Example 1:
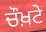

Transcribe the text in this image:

ਚੌਖ਼ਟੇ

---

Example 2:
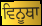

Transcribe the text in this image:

ਵਿਨੂਥਾ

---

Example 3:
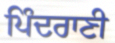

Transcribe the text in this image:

ਪਿੰਦਰਾਣੀ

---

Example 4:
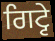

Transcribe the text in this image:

ਗਿਟ੍ਟੇ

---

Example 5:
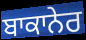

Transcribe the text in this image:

ਬਾਕਾਨੇਰ